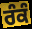
ਰੰਕੰ